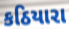
કઠિયારા